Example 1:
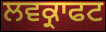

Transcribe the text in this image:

ਲਵਕ੍ਰਾਫਟ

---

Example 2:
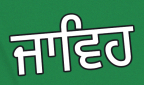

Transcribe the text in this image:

ਜਾਵਿਹ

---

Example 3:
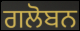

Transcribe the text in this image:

ਗਲੋਬਨ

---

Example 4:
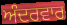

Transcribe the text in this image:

ਅੰਦਰਵਾਰ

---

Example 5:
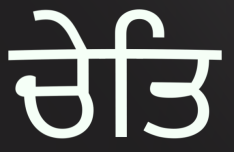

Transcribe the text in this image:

ਚੇਤਿ